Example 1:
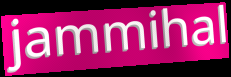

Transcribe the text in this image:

jammihal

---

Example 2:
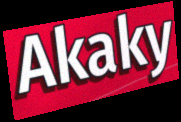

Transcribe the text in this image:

Akaky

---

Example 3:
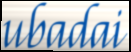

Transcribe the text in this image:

ubadai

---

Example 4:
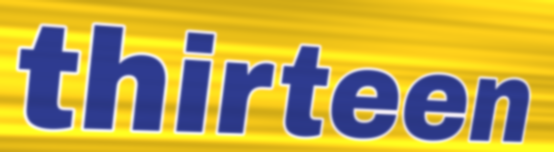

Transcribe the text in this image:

thirteen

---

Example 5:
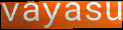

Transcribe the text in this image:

vayasu